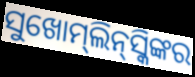
ସୁଖୋମ୍‍ଲିନ୍‍ସ୍କିଙ୍କର